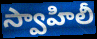
స్వాహిలీ